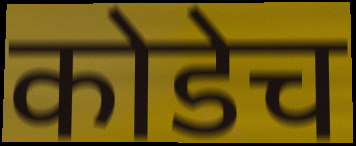
कोडेच